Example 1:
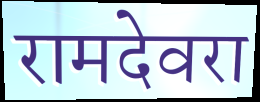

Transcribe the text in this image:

रामदेवरा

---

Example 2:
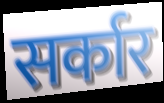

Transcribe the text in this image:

सर्कार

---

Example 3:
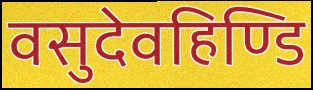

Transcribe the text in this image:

वसुदेवहिण्डि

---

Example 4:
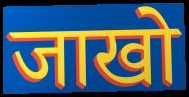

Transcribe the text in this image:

जाखो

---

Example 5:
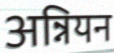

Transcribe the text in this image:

अन्नियन